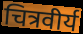
चित्रवीर्य